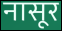
नासूर